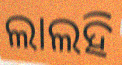
ଲାଲହି